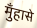
मुँहासे